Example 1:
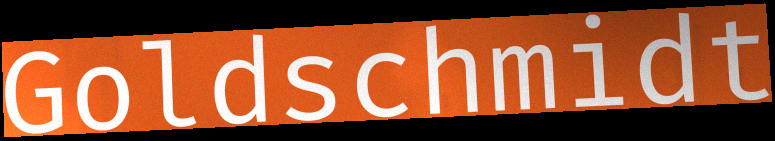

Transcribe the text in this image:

Goldschmidt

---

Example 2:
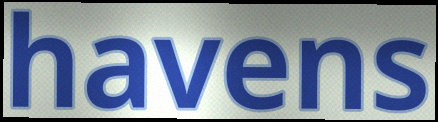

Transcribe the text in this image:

havens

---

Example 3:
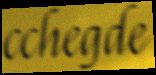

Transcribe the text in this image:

cchegde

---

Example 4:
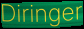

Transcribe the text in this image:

Diringer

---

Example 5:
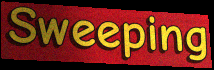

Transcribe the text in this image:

Sweeping